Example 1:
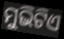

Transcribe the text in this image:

ମୁଭିଟିଏ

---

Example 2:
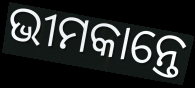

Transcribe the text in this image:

ଭୀମକାନ୍ତେ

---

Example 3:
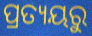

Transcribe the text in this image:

ପ୍ରତ୍ୟୟରୁ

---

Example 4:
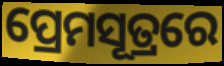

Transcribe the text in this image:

ପ୍ରେମସୂତ୍ରରେ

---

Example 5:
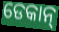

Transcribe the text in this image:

ଡେକାନ୍